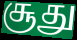
சூது